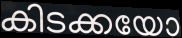
കിടക്കയോ